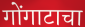
गोंगाटाचा